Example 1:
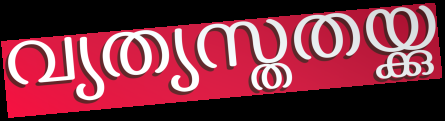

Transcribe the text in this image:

വ്യത്യസ്തതയ്ക്കു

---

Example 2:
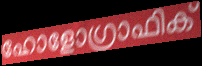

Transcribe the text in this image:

ഹോളോഗ്രാഫിക്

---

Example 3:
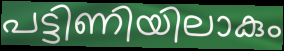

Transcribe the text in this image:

പട്ടിണിയിലാകും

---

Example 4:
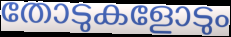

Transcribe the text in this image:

തോടുകളോടും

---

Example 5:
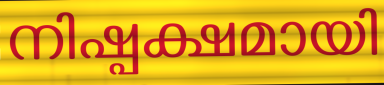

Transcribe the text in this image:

നിഷ്പക്ഷമായി